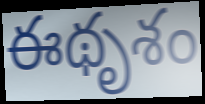
ఈథృశం